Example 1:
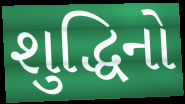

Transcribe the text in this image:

શુદ્ધિનો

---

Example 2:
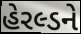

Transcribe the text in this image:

હેરલ્ડને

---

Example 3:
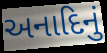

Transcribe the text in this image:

અનાદિનું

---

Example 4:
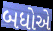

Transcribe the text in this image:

બધોએ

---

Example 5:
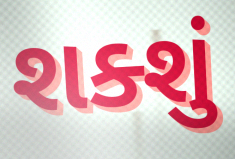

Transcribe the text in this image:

શક્શું